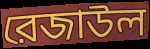
রেজাউল